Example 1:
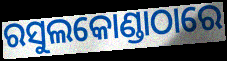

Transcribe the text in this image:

ରସୁଲକୋଣ୍ଡାଠାରେ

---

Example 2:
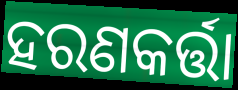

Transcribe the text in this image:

ହରଣକର୍ତ୍ତା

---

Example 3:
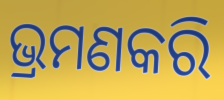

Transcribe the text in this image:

ଭ୍ରମଣକରି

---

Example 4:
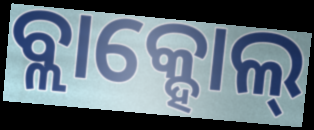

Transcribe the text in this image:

ବ୍ଲାକ୍ହୋଲ୍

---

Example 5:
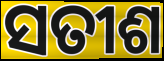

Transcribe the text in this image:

ସତୀଶ